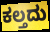
ಕಲ್ತದು